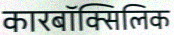
कारबॉक्सिलिक